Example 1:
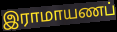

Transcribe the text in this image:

இராமாயணப்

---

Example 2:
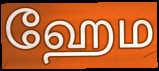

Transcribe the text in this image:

ஹேம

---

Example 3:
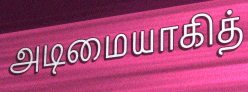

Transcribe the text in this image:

அடிமையாகித்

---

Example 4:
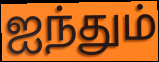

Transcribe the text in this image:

ஐந்தும்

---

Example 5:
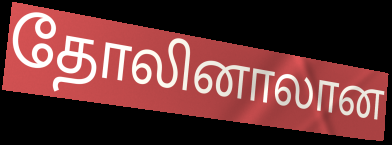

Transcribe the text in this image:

தோலினாலான